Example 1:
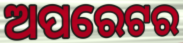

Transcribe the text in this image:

ଅପରେଟର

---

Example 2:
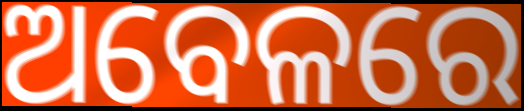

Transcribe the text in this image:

ଅବେଳରେ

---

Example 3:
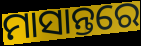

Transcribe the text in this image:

ମାସାନ୍ତରେ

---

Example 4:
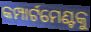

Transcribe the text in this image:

କମ୍ପାର୍ଟମେଣ୍ଟକୁ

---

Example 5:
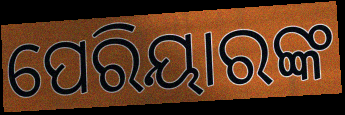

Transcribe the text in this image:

ପେରିୟାରଙ୍କ